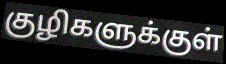
குழிகளுக்குள்